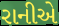
રાનીએ